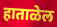
हाताळेल